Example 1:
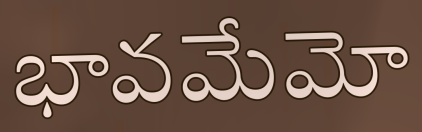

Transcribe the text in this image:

భావమేమో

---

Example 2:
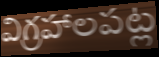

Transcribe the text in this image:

విగ్రహాలపట్ల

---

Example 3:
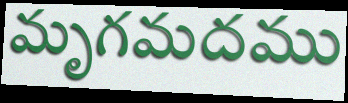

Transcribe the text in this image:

మృగమదము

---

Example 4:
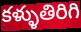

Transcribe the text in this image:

కళ్ళుతిరిగి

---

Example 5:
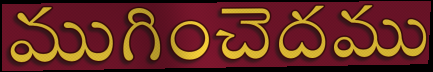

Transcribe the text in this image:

ముగించెదము